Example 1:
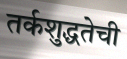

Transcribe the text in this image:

तर्कशुद्धतेची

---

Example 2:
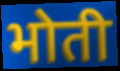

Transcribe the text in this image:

भोती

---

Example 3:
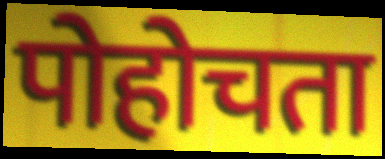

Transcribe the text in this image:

पोहोचता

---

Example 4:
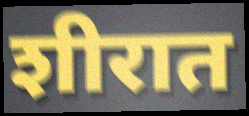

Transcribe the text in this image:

शीरात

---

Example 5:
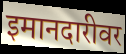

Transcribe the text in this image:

इमानदारीवर